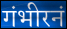
गंभीरनं